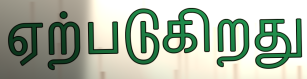
ஏற்படுகிறது